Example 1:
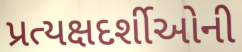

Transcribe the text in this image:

પ્રત્યક્ષદર્શીઓની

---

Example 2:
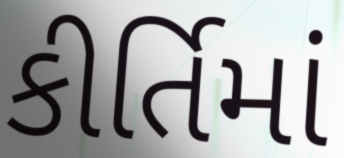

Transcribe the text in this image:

કીર્તિમાં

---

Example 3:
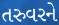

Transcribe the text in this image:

તરુવરને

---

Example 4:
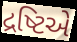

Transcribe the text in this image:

દ્રષ્ટિએ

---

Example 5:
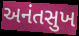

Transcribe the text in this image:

અનંતસુખ